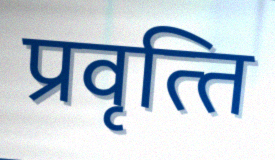
प्रवृत्‍ति